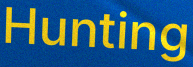
Hunting